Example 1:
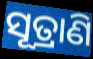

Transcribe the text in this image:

ସୂତ୍ରାଣି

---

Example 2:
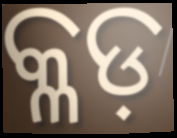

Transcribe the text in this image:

କ୍ଳଡ଼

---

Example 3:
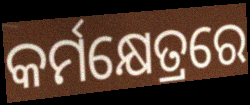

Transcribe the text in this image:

କର୍ମକ୍ଷେତ୍ରରେ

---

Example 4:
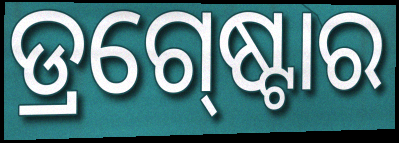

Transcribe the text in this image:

ଡ୍ରଗ୍‍ଷ୍ଟୋର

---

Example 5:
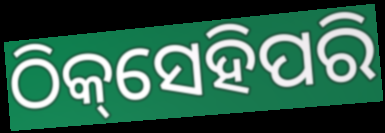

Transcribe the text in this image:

ଠିକ୍‌ସେହିପରି